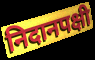
निदानपक्षी